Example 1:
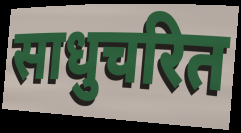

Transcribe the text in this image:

साधुचरित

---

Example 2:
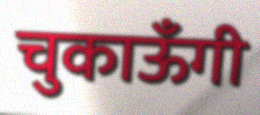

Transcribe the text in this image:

चुकाऊँगी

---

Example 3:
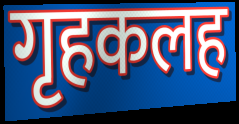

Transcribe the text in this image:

गृहकलह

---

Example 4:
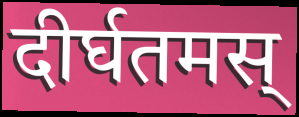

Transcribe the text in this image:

दीर्घतमस्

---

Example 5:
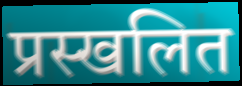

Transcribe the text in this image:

प्रस्खलित